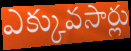
ఎక్కువసార్లు